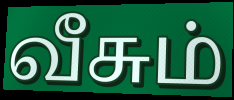
வீசும்